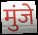
मुंजे